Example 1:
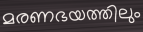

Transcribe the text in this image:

മരണഭയത്തിലും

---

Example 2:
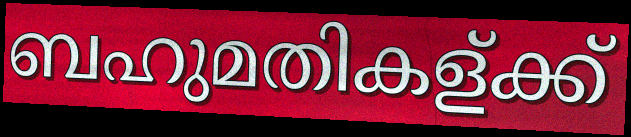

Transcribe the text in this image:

ബഹുമതികള്ക്ക്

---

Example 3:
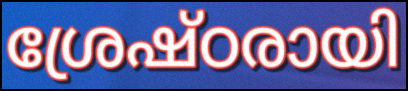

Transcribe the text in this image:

ശ്രേഷ്ഠരായി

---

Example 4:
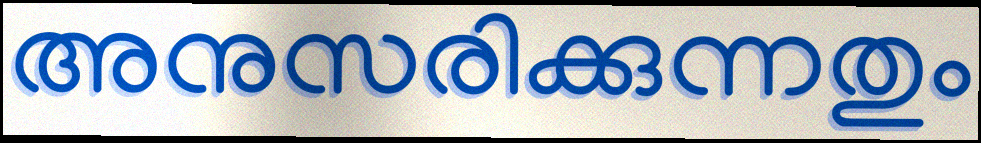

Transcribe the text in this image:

അനുസരിക്കുന്നതും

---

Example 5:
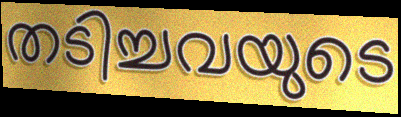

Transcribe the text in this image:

തടിച്ചവയുടെ